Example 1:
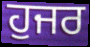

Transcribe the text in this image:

ਹੁਜਰ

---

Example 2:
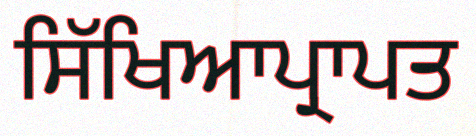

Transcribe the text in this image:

ਸਿੱਖਿਆਪ੍ਰਾਪਤ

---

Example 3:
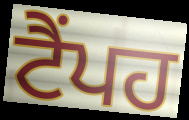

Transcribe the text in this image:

ਟੈਂਪਹ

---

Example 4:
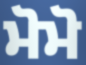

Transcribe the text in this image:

ਮੋਮੋ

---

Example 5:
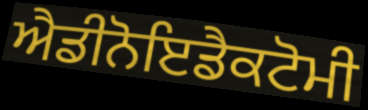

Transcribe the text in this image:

ਐਡੀਨੋਇਡੈਕਟੋਮੀ